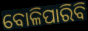
ବୋଳିପାରିବି